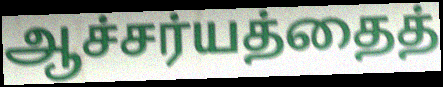
ஆச்சர்யத்தைத்